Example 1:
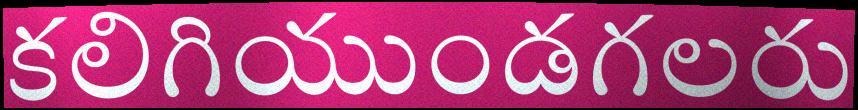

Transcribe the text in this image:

కలిగియుండగలరు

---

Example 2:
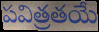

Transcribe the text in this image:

పవిత్రతయే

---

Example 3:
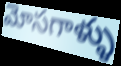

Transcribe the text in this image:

మోసగాళ్ళు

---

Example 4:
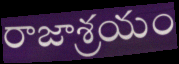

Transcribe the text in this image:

రాజాశ్రయం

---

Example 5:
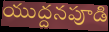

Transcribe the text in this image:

యుద్దనపూడి